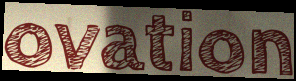
ovation